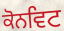
ਕੋਨਵਿਟ